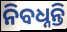
ନିବଧ୍ନନ୍ତି